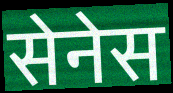
सेनेस